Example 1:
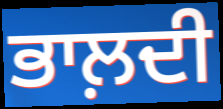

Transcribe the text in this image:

ਭਾਲ਼ਦੀ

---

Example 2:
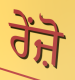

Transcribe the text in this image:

ਰੇਂਜ਼ੋ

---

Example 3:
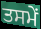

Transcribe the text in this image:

ਤਸਮੇਂ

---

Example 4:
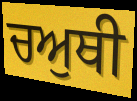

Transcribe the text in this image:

ਚਅੁਥੀ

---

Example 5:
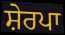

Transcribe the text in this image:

ਸ਼ੇਰਪਾ